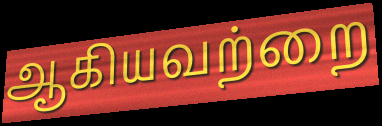
ஆகியவற்றை